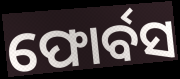
ଫୋର୍ବସ